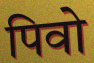
पिवो